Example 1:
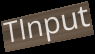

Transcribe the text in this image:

TInput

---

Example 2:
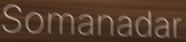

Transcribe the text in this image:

Somanadar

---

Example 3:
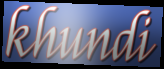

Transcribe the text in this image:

khundi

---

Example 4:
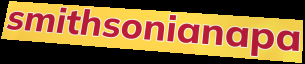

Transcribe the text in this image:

smithsonianapa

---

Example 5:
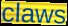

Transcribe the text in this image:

claws